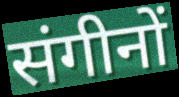
संगीनों